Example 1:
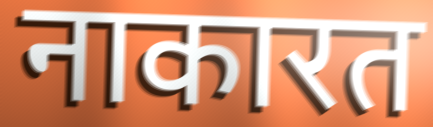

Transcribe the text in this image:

नाकारत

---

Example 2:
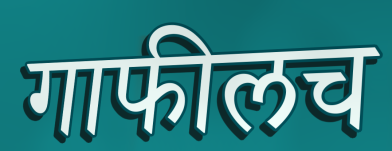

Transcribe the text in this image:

गाफीलच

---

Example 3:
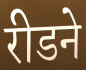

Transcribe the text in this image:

रीडने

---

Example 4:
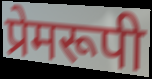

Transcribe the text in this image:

प्रेमरूपी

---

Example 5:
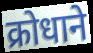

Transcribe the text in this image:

क्रोधाने